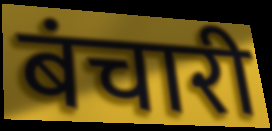
बंचारी